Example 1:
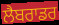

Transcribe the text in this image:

ਲੈਬਰਾਡਰ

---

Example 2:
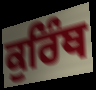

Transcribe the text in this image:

ਕੁਰਿੰਥ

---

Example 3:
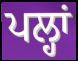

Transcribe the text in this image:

ਪਲ੍ਹਾਂ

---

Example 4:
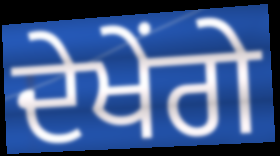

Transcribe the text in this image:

ਦੇਖੇਂਗੇ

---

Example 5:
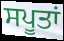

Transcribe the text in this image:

ਸਪੂਤਾਂ